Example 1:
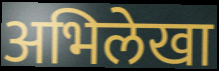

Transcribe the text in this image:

अभिलेखा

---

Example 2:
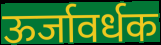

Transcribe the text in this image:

ऊर्जावर्धक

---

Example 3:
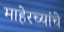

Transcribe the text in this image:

माहेरच्यांचे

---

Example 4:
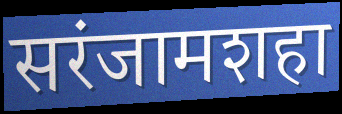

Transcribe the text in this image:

सरंजामशहा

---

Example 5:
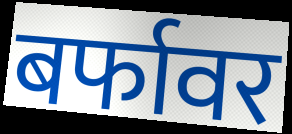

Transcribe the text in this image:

बर्फावर